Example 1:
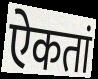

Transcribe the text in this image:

ऐकतां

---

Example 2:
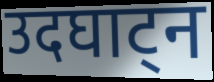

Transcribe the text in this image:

उदघाट्न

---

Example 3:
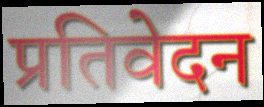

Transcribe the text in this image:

प्रतिवेदन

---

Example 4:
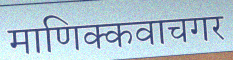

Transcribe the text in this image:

माणिक्कवाचगर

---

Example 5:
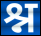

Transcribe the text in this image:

श्न